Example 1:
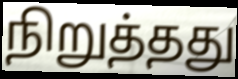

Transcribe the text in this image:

நிறுத்தது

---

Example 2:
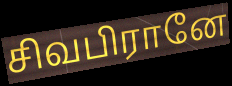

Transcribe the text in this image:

சிவபிரானே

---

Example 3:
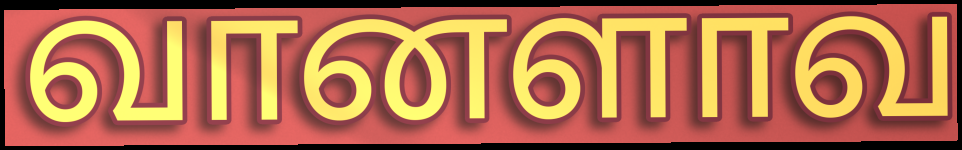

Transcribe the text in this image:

வானளாவ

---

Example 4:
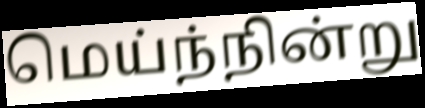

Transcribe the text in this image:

மெய்ந்நின்று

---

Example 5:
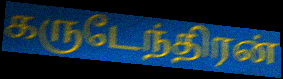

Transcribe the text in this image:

கருடேந்திரன்